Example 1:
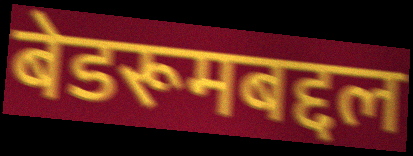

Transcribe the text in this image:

बेडरूमबद्दल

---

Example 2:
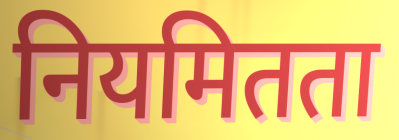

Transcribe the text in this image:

नियमितता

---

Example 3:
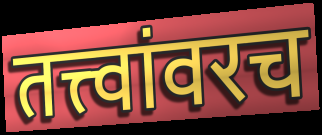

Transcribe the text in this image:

तत्त्वांवरच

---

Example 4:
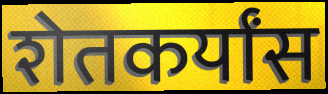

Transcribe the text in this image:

शेतकर्यांस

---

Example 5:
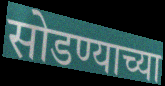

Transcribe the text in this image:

सोडण्याच्या